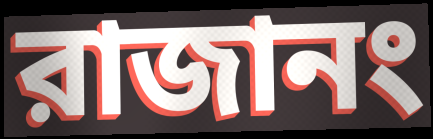
রাজানং